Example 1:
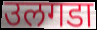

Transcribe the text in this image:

उलगडा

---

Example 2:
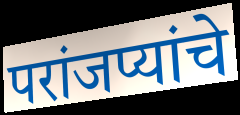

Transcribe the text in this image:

परांजप्यांचे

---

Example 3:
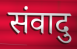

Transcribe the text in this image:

संवादु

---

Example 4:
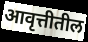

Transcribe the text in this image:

आवृत्तीतील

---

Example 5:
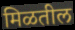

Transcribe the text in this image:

मिळतील